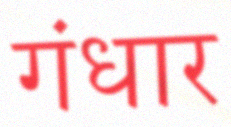
गंधार